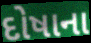
દોષાના